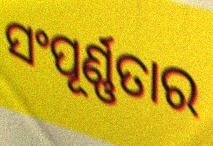
ସଂପୂର୍ଣ୍ଣତାର